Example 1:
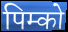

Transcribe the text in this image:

पिम्को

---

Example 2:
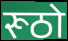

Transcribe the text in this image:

रूठो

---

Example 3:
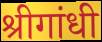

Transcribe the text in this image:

श्रीगांधी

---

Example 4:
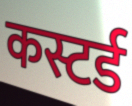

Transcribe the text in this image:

कस्टर्ड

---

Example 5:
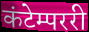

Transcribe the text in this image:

कंटेम्पररी